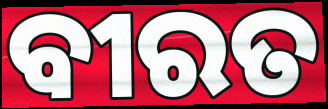
ବୀରତ